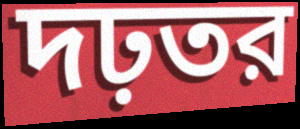
দঢ়তর